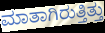
ಮಾತಾಗಿರುತ್ತಿತ್ತು